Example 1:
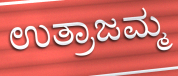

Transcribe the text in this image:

ಉತ್ರಾಜಮ್ಮ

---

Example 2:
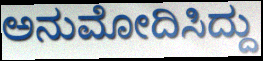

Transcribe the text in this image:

ಅನುಮೋದಿಸಿದ್ದು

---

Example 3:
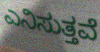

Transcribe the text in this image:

ಎನಿಸುತ್ತವೆ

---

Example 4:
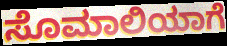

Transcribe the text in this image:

ಸೊಮಾಲಿಯಾಗೆ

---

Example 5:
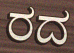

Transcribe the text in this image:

ರದ